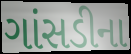
ગાંસડીના